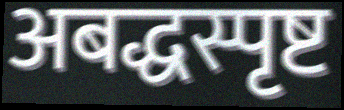
अबद्धस्पृष्ट